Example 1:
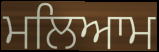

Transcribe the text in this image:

ਮਲਿਆਮ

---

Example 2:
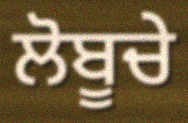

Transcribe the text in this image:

ਲੋਬੂਚੇ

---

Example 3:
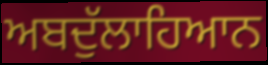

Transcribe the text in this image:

ਅਬਦੁੱਲਾਹਿਆਨ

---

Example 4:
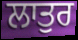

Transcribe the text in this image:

ਲਾਤੁਰ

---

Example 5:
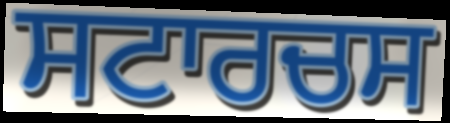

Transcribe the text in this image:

ਸਟਾਰਚਸ